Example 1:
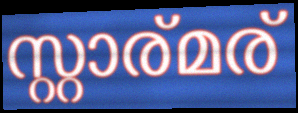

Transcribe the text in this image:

സ്റ്റാര്മര്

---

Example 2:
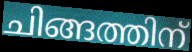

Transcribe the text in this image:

ചിങ്ങത്തിന്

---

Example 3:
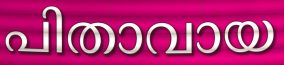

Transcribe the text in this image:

പിതാവായ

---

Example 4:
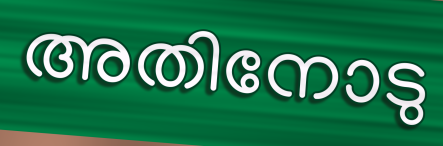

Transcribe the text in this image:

അതിനോടു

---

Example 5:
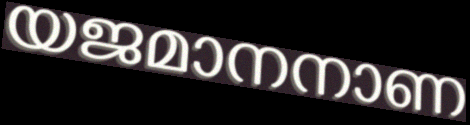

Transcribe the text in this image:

യജമാനനാണ